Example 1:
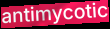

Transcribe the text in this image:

antimycotic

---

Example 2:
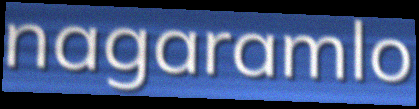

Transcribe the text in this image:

nagaramlo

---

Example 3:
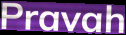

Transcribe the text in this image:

Pravah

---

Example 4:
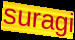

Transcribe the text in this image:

suragi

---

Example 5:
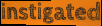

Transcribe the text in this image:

instigated